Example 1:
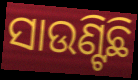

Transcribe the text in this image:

ସାଉଣ୍ଟିଛି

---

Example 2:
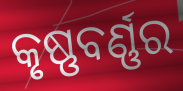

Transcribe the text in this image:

କୃଷ୍ଣବର୍ଣ୍ଣର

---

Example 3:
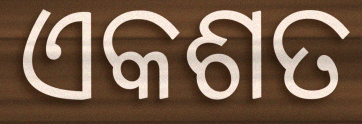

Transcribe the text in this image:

ଏକଶତ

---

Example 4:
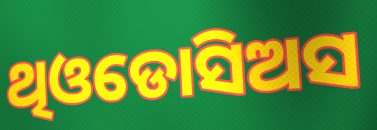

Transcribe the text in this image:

ଥିଓଡୋସିଅସ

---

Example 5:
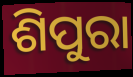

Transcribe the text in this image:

ଶିପୁରା